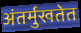
अंतर्मुखतेत